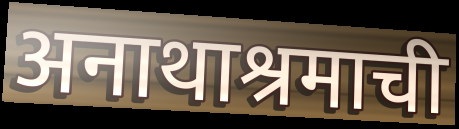
अनाथाश्रमाची